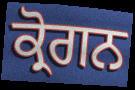
ਕ੍ਰੋਗਨ